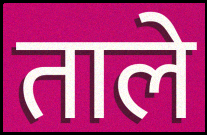
ताले